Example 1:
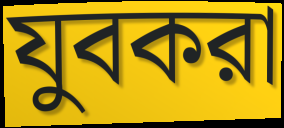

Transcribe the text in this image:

যুবকরা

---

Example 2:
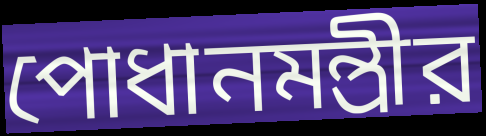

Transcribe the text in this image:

পোধানমন্ত্রীর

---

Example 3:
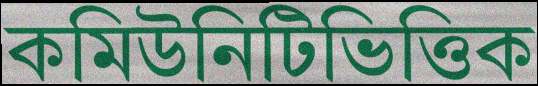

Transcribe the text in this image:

কমিউনিটিভিত্তিক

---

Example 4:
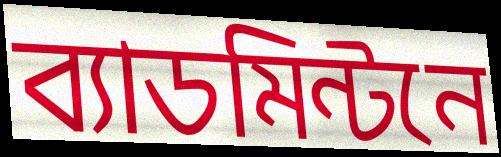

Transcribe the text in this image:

ব্যাডমিন্টনে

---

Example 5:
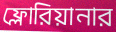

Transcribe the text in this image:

ফ্লোরিয়ানার